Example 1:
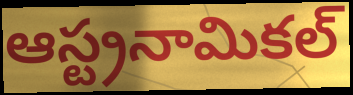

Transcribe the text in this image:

ఆస్ట్రనామికల్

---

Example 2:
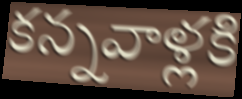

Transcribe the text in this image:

కన్నవాళ్లకి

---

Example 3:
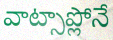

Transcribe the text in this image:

వాట్సాప్లోనే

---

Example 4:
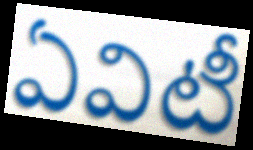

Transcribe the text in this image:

ఏవిటీ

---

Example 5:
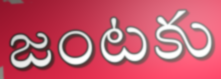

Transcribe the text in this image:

జంటకు